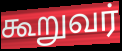
கூறுவர்